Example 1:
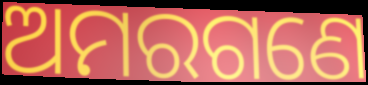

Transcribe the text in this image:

ଅମରଗଣେ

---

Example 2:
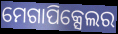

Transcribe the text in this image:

ମେଗାପିକ୍ସେଲର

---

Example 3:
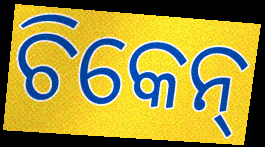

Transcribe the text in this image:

ଚିକେନ୍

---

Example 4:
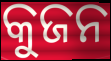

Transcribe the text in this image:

କୁଜନ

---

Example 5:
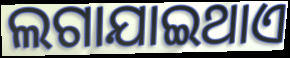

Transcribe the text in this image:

ଲଗାଯାଇଥାଏ